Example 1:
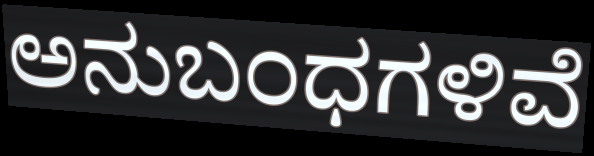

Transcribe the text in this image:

ಅನುಬಂಧಗಳಿವೆ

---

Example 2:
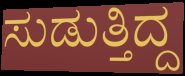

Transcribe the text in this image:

ಸುಡುತ್ತಿದ್ದ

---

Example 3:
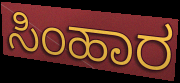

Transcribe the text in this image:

ಸಿಂಹಾರ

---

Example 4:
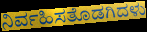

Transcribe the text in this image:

ನಿರ್ವಹಿಸತೊಡಗಿದಳು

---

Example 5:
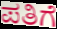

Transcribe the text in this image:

ಪತಿಗೆ